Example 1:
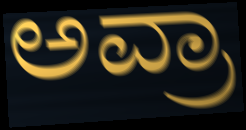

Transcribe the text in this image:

ಅವ್ರಾ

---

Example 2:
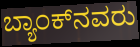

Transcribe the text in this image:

ಬ್ಯಾಂಕ್‌ನವರು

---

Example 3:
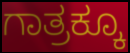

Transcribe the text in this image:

ಗಾತ್ರಕ್ಕೂ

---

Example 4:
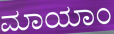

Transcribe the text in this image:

ಮಾಯಾಂ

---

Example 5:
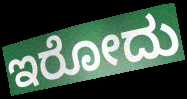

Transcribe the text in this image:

ಇರೋದು